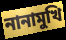
নানামুখি